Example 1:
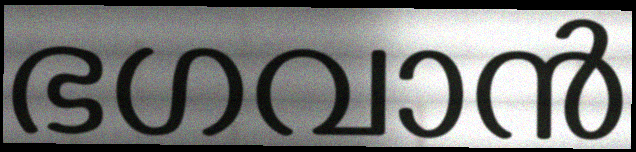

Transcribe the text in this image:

ഭഗവാൻ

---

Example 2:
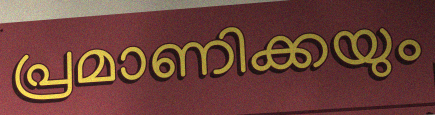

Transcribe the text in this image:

പ്രമാണിക്കയും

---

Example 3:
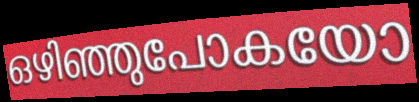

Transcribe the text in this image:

ഒഴിഞ്ഞുപോകയോ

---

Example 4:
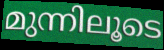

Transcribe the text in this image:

മുന്നിലൂടെ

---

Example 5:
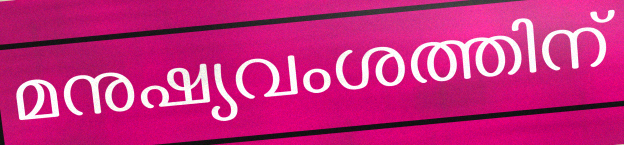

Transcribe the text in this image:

മനുഷ്യവംശത്തിന്